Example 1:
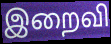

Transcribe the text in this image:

இறைவி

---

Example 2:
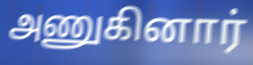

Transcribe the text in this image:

அணுகினார்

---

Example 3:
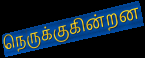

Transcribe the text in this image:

நெருக்குகின்றன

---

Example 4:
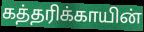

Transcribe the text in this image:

கத்தரிக்காயின்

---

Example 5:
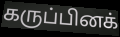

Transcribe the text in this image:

கருப்பினக்